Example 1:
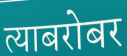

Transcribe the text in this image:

त्याबरोबर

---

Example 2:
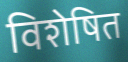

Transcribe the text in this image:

विशेषित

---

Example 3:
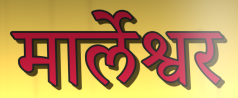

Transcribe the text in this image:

मार्लेश्वर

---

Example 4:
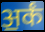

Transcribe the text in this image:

अ॒र्कं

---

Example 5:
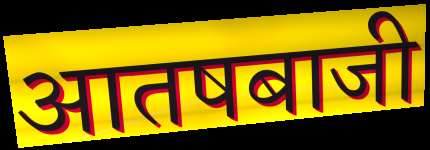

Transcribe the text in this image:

आतषबाजी